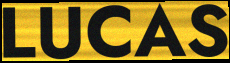
LUCAS